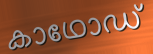
കാഥോഡ്